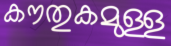
കൗതുകമുള്ള